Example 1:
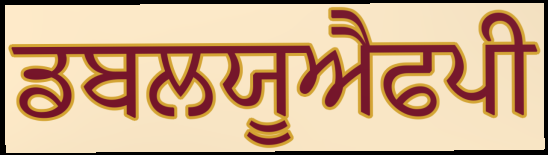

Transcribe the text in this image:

ਡਬਲਯੂਐਫਪੀ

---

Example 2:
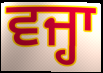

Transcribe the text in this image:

ਵਜ੍ਹਾ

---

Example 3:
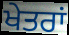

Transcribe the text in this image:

ਖੇਤਰਾਂ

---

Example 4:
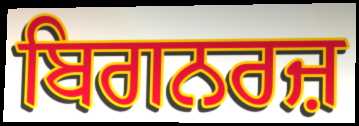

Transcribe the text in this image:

ਬਿਗਨਰਜ਼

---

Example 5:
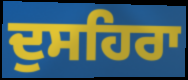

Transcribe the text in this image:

ਦੁਸਹਿਰਾ